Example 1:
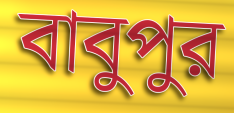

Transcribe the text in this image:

বাবুপুর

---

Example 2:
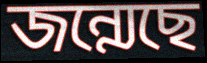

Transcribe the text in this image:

জন্মেছে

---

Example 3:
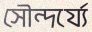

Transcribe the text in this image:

সৌন্দর্য্যে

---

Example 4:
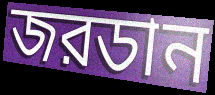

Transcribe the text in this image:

জরডান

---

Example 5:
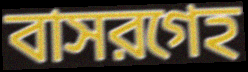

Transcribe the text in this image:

বাসরগেহ